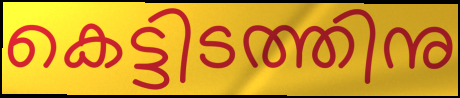
കെട്ടിടത്തിനു